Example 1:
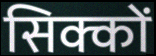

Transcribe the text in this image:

सिक्कों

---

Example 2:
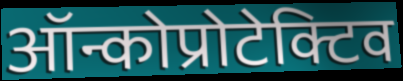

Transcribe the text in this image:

ऑन्कोप्रोटेक्टिव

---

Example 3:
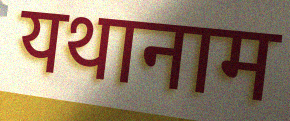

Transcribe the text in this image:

यथानाम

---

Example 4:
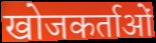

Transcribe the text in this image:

खोजकर्ताओं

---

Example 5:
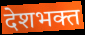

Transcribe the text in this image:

देशभक्त